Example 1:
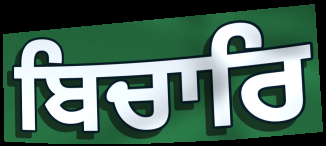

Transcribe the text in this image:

ਬਿਚਾਰਿ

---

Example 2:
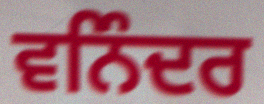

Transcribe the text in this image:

ਵਨਿੰਦਰ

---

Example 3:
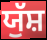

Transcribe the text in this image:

ਯੁੱਸ਼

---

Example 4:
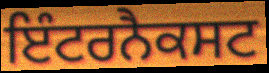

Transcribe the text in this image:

ਇੰਟਰਨੈਕਸਟ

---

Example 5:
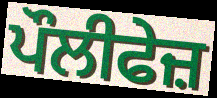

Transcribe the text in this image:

ਪੌਲੀਫੇਜ਼